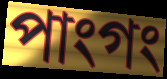
পাংগং